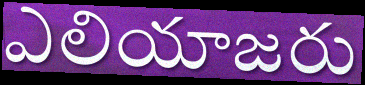
ఎలియాజరు